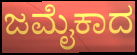
ಜಮೈಕಾದ